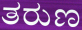
ತರುಣ